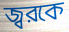
জ্বরকে